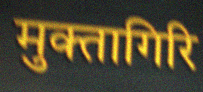
मुक्तागिरि